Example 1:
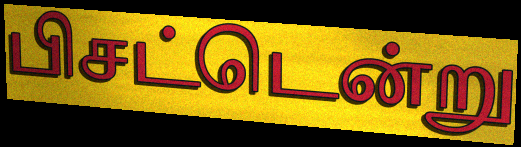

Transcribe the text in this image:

பிசட்டென்று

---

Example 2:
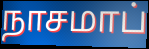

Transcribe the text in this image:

நாசமாப்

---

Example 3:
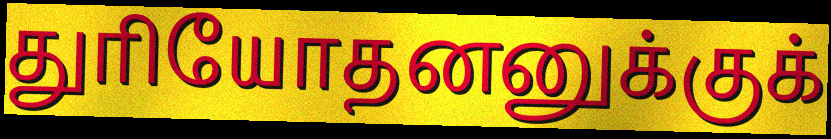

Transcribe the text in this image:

துரியோதனனுக்குக்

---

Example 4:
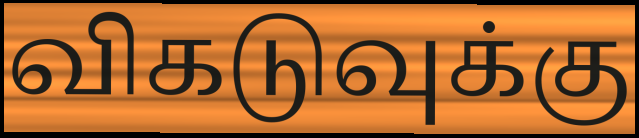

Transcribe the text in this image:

விகடுவுக்கு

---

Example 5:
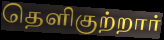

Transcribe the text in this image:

தெளிகுற்றார்